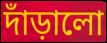
দাঁড়ালো